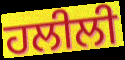
ਹਲੀਲੀ